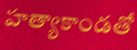
హత్యాకాండతో